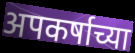
अपकर्षाच्या